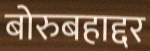
बोरुबहाद्दर